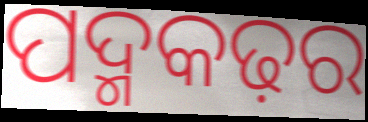
ପଦ୍ମକଢ଼ର